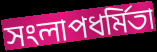
সংলাপধর্মিতা